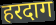
हरदाग